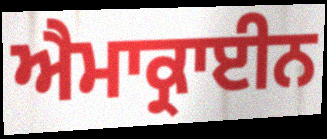
ਐਮਾਕ੍ਰਾਈਨ